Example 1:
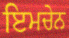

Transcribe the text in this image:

ਇਮਚੇਨ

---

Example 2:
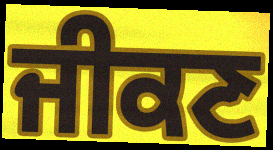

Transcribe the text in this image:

ਜੀਕਣ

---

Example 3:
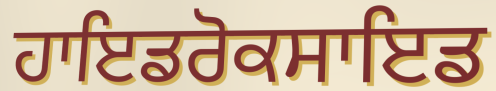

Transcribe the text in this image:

ਹਾਇਡਰੋਕਸਾਇਡ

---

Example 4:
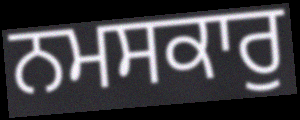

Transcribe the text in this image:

ਨਮਸਕਾਰੁ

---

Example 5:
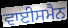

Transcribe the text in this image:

ਵਾਈਸਮੈਨ